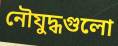
নৌযুদ্ধগুলো